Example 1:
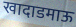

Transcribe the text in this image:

खादाडमाऊ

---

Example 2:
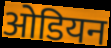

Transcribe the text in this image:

ओडियन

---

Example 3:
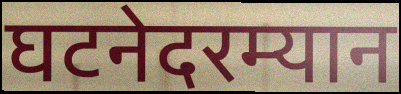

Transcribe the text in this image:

घटनेदरम्यान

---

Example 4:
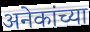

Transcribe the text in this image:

अनेकांच्या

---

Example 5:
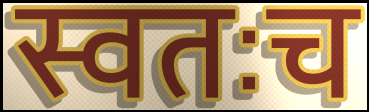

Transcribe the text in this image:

स्वतःच